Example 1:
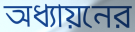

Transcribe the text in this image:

অধ্যায়নের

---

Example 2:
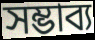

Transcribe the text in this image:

সম্ভাব্য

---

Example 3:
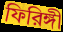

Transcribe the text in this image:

ফিরিঙ্গী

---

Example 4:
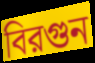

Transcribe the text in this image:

বিরগুন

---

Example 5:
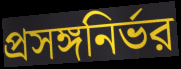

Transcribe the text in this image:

প্রসঙ্গনির্ভর